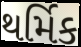
થર્મિક